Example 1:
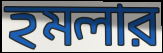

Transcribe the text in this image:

হমলার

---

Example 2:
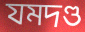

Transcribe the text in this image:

যমদণ্ড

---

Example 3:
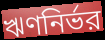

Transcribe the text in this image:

ঋণনির্ভর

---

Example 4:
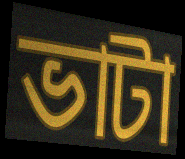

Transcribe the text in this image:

ভাটা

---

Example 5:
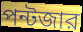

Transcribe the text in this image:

পন্টজার